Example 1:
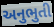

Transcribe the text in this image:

અનુભુતી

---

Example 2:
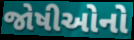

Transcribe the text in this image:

જોષીઓનો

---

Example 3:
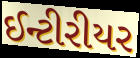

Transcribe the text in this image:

ઈન્ટીરીયર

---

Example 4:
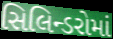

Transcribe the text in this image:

સિલિન્ડરોમાં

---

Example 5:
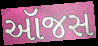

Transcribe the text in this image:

ઑજસ